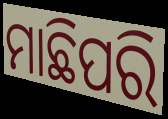
ମାଛିପରି